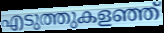
എടുത്തുകളഞ്ഞ്